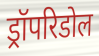
ड्रॉपरिडोल